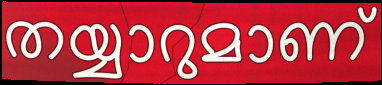
തയ്യാറുമാണ്